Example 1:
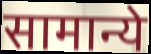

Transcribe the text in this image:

सामान्ये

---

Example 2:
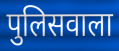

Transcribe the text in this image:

पुलिसवाला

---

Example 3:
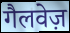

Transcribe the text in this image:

गैलवेज़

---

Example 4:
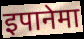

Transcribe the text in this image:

इपानेमा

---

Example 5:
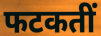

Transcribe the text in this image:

फटकतीं